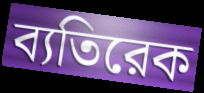
ব্যতিরেক